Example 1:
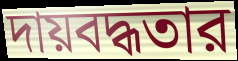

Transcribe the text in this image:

দায়বদ্ধতার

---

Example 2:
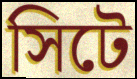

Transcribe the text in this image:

সিটে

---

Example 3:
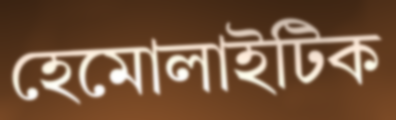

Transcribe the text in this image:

হেমোলাইটিক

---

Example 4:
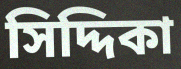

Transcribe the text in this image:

সিদ্দিকা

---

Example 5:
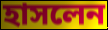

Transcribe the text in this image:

হাসলেন